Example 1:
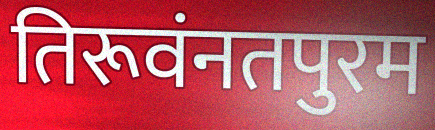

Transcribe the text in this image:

तिरूवंनतपुरम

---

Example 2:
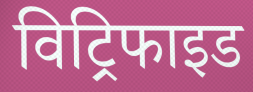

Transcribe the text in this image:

विट्रिफाइड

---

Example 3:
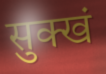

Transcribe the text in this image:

सुक्खं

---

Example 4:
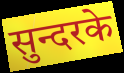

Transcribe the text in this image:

सुन्दरके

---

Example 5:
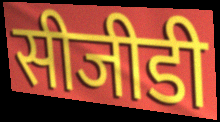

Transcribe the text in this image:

सीजीडी